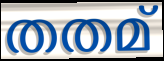
തതമ്